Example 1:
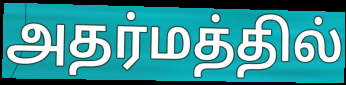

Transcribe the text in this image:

அதர்மத்தில்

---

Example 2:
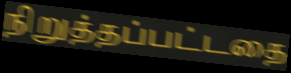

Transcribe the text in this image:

நிறுத்தப்பட்டதை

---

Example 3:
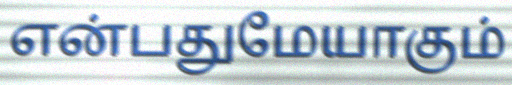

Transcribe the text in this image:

என்பதுமேயாகும்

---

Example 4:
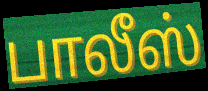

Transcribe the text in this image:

பாலீஸ்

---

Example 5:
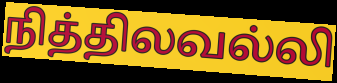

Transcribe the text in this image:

நித்திலவல்லி